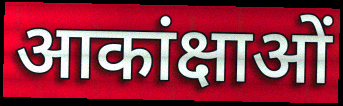
आकांक्षाओं